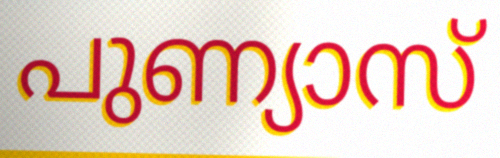
പുണ്യാസ്